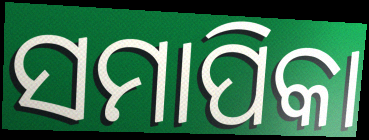
ସମାପିକା